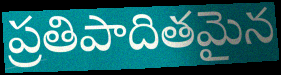
ప్రతిపాదితమైన